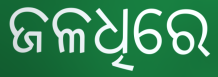
ଜଳଧିରେ